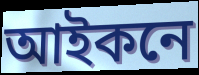
আইকনে